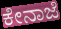
ಕೇನಾಜೆ